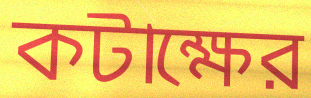
কটাক্ষের